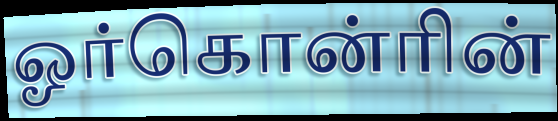
ஓர்கொன்ரின்